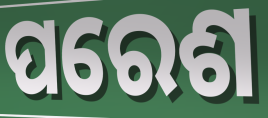
ପରେଶ